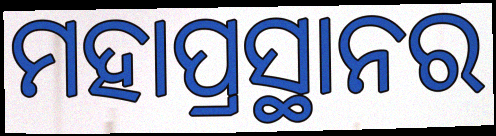
ମହାପ୍ରସ୍ଥାନର